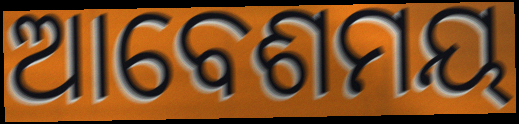
ଆବେଶମୟ